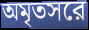
অমৃতসরে